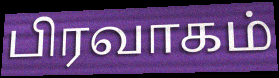
பிரவாகம்